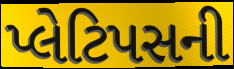
પ્લેટિપસની